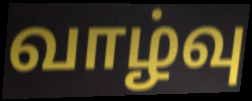
வாழ்வு